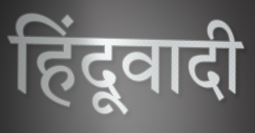
हिंदूवादी